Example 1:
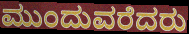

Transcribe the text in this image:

ಮುಂದುವರೆದರು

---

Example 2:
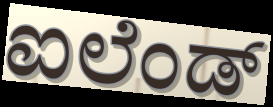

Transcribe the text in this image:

ಐಲೆಂಡ್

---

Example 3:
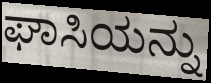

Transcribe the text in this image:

ಘಾಸಿಯನ್ನು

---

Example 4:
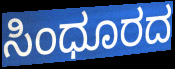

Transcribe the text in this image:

ಸಿಂಧೂರದ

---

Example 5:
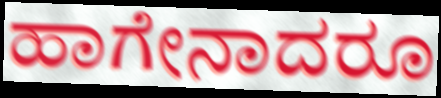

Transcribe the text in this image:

ಹಾಗೇನಾದರೂ